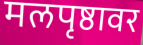
मलपृष्ठावर